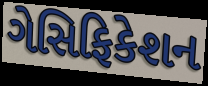
ગેસિફિકેશન